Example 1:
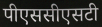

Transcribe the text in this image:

पीएससीएसटी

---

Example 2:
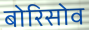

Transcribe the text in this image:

बोरिसोव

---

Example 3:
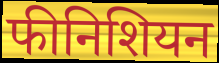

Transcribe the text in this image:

फीनिशियन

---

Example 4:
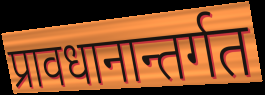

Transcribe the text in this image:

प्रावधानान्तर्गत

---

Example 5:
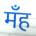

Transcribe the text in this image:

मँह